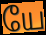
யே